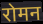
रोमन